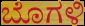
ಬೊಗಳಿ